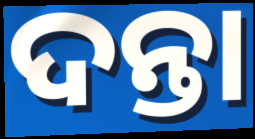
ଦନ୍ତା